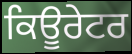
ਕਿਊਰੇਟਰ